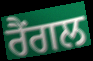
ਰੈਂਗਲ